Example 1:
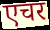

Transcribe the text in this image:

एचर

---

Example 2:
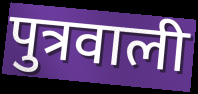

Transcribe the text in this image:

पुत्रवाली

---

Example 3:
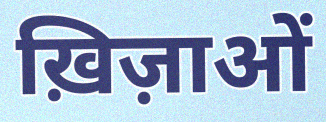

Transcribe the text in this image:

ख़िज़ाओं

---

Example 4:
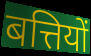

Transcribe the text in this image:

बत्तियों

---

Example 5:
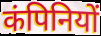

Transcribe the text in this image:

कंपिनियों